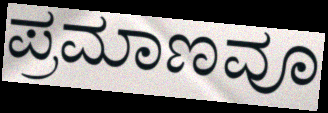
ಪ್ರಮಾಣವೂ